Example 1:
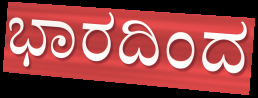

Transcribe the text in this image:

ಭಾರದಿಂದ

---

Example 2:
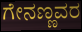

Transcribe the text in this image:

ಗೇನಣ್ಣವರ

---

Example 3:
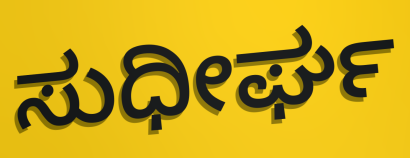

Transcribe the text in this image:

ಸುಧೀರ್ಘ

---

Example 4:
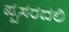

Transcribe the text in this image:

ಪ್ಪಸರದಲಿ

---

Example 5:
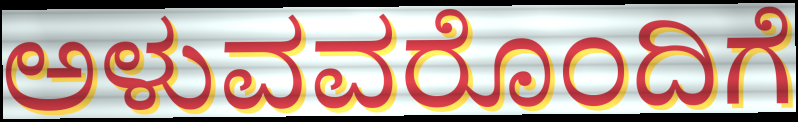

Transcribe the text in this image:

ಅಳುವವರೊಂದಿಗೆ